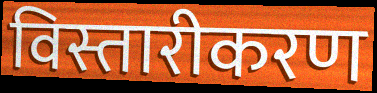
विस्तारीकरण